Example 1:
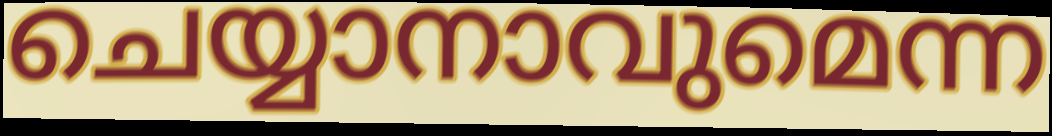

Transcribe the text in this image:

ചെയ്യാനാവുമെന്ന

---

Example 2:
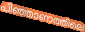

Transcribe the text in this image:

പിഞ്ഞാണത്തിലെ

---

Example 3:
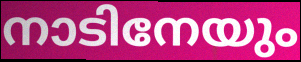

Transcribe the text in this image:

നാടിനേയും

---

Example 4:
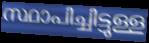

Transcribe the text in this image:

സ്ഥാപിച്ചിട്ടുള്ള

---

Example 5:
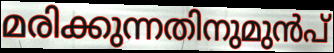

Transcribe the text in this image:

മരിക്കുന്നതിനുമുൻപ്